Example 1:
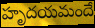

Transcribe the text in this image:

హృదయమందే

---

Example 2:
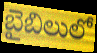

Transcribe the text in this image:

బైబిలులో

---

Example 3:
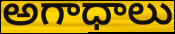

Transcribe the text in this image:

అగాధాలు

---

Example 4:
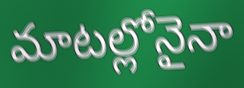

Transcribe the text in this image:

మాటల్లోనైనా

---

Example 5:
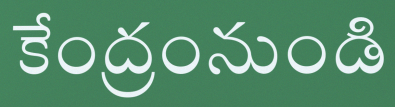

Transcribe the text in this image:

కేంద్రంనుండి